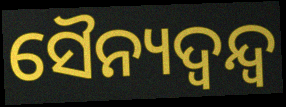
ସୈନ୍ୟଦ୍ୱନ୍ଦ୍ୱ